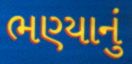
ભણ્યાનું